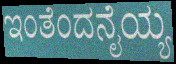
ಇಂತೆಂದನೈಯ್ಯ